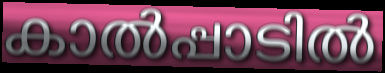
കാൽപ്പാടിൽ